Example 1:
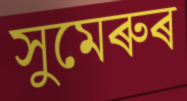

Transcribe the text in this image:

সুমেৰুৰ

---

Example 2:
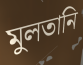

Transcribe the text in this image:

মুলতানি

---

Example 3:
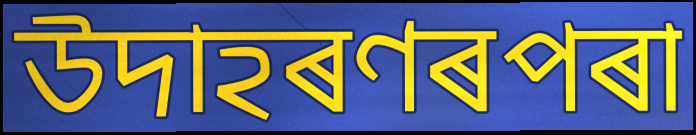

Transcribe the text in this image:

উদাহৰণৰপৰা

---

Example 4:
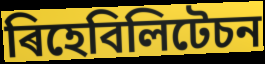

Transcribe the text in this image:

ৰিহেবিলিটেচন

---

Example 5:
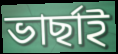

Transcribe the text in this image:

ভাৰ্ছাই